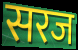
सरज